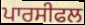
ਪਾਰਸੀਫਲ